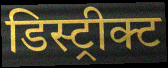
डिस्ट्रीक्ट